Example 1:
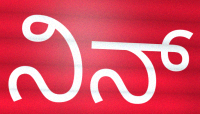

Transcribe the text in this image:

ನಿನ್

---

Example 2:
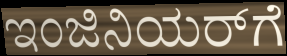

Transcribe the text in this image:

ಇಂಜಿನಿಯರ್‌ಗೆ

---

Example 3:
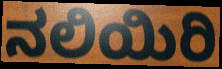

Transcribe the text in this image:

ನಲಿಯಿರಿ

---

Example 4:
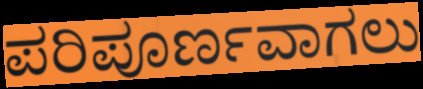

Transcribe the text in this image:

ಪರಿಪೂರ್ಣವಾಗಲು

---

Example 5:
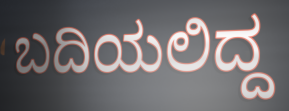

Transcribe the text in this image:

ಬದಿಯಲಿದ್ದ